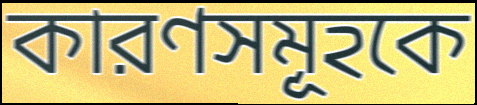
কারণসমূহকে